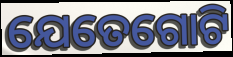
ଯେତେଗୋଟି